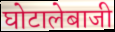
घोटालेबाजी